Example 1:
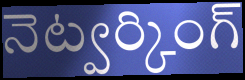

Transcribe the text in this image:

నెట్వర్కింగ్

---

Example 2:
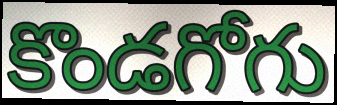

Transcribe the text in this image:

కొండగోగు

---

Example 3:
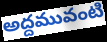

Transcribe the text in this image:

అద్దమువంటి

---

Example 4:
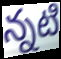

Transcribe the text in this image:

న్నటి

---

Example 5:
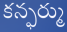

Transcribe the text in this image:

కన్ఫర్ము